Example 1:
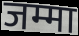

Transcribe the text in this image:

जम्मा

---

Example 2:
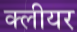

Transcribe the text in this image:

क्लीयर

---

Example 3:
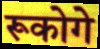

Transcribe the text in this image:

रूकोगे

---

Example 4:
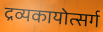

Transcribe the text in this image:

द्रव्यकायोत्सर्ग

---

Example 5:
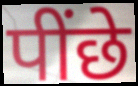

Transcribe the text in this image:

पींछे